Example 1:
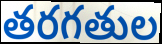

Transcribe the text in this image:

తరగతుల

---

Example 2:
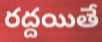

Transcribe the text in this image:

రద్దయితే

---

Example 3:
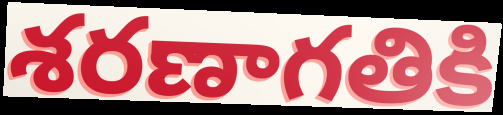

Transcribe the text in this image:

శరణాగతికి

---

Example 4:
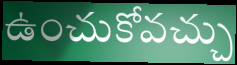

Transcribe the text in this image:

ఉంచుకోవచ్చు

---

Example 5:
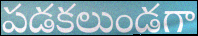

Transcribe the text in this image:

పడకలుండగా